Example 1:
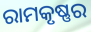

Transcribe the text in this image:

ରାମକୃଷ୍ଣର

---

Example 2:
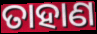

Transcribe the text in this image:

ତାହାଣ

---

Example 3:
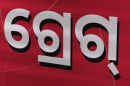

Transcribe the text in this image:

ଗ୍ରେଗ୍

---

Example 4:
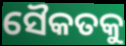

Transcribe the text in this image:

ସୈକତକୁ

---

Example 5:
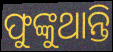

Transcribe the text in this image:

ଫୁଙ୍କୁଥାନ୍ତି